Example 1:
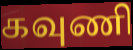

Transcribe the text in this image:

கவுணி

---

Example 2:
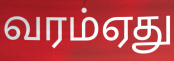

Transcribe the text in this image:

வரம்ஏது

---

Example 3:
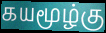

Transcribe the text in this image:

கயமூழ்கு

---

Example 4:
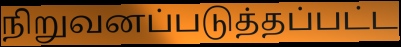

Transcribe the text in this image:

நிறுவனப்படுத்தப்பட்ட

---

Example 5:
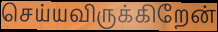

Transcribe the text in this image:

செய்யவிருக்கிறேன்